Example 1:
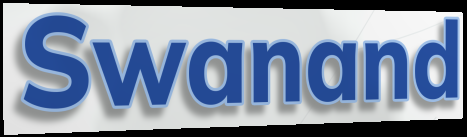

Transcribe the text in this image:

Swanand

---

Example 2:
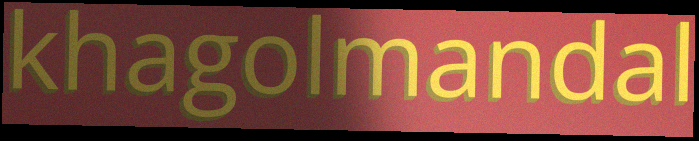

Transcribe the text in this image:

khagolmandal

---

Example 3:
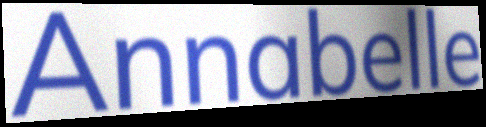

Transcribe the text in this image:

Annabelle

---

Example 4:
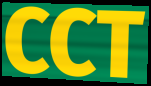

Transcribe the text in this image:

CCT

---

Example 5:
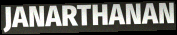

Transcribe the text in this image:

JANARTHANAN